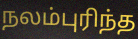
நலம்புரிந்த